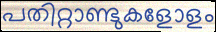
പതിറ്റാണ്ടുകളോളം